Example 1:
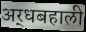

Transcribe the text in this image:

अर्धबहाली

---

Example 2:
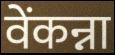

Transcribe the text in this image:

वेंकन्ना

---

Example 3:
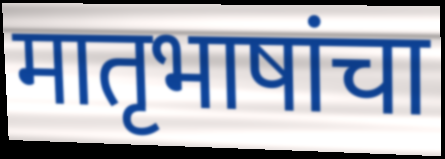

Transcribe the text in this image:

मातृभाषांचा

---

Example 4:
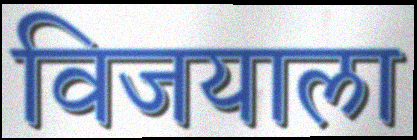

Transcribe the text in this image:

विजयाला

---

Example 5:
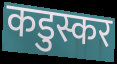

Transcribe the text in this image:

कडुस्कर